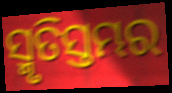
ସ୍ମୃତିସ୍ତମ୍ଭର